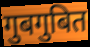
गुबगुबित